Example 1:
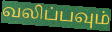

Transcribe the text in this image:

வலிப்பவும்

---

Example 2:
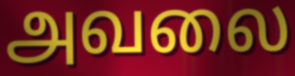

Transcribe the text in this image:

அவலை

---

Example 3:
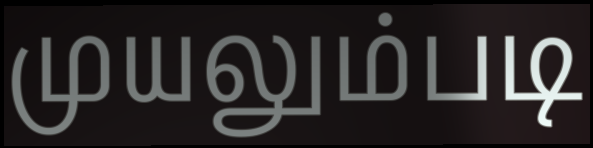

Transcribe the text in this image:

முயலும்படி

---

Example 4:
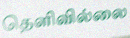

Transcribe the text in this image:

தெளிவில்லை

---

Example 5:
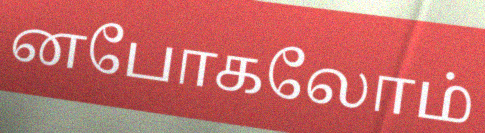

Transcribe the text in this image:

னபோகலோம்